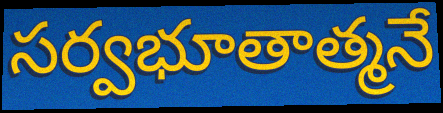
సర్వభూతాత్మనే